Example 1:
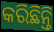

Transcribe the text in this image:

କରିଛିନ୍ତି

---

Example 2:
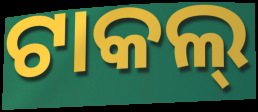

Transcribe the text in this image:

ଟାକଲ୍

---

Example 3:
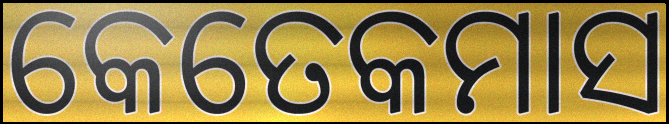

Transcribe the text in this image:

କେତେକମାସ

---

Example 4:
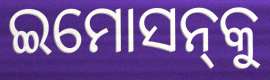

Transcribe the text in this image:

ଇମୋସନ୍‌କୁ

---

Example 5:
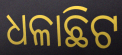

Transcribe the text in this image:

ଧଳାଛିଟ